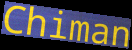
Chiman